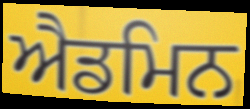
ਐਡਮਿਨ